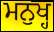
ਮਨੁਖ੍ਹ